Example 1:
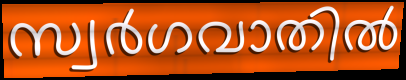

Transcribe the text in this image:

സ്വർഗവാതിൽ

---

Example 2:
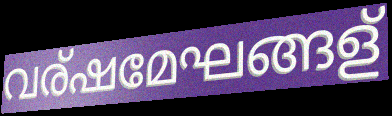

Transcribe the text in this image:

വര്ഷമേഘങ്ങള്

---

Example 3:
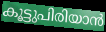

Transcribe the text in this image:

കൂട്ടുപിരിയാൻ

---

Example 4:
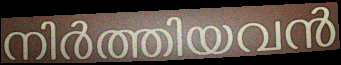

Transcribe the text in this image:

നിർത്തിയവൻ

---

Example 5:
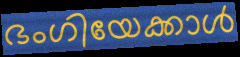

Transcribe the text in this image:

ഭംഗിയേക്കാൾ